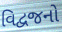
વિદ્વજનો